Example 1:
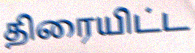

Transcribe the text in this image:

திரையிட்ட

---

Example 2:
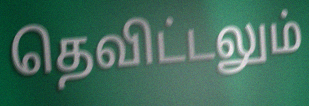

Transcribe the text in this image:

தெவிட்டலும்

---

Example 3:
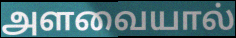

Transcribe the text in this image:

அளவையால்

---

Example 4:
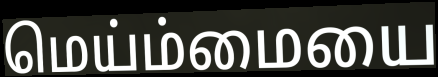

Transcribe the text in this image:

மெய்ம்மையை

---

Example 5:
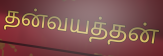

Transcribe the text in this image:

தன்வயத்தன்